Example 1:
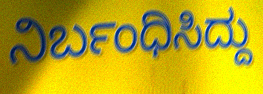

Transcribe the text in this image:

ನಿರ್ಬಂಧಿಸಿದ್ದು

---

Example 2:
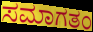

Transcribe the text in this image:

ಸಮಾಗತಂ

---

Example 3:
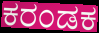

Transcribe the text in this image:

ಕರಂಡಕ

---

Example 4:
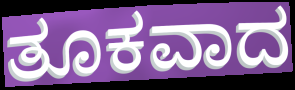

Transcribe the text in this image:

ತೂಕವಾದ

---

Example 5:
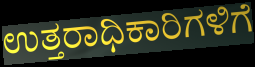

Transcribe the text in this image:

ಉತ್ತರಾಧಿಕಾರಿಗಳಿಗೆ